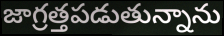
జాగ్రత్తపడుతున్నాను